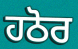
ਹਠੋਰ